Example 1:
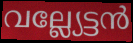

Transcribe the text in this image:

വല്ല്യേട്ടൻ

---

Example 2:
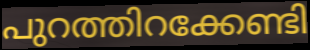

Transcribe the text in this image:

പുറത്തിറക്കേണ്ടി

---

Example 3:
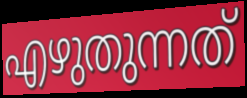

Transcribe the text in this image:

എഴുതുന്നത്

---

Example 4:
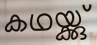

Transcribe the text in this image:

കഥയ്ക്കു്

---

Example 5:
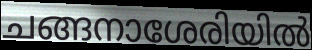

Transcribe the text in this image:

ചങ്ങനാശേരിയിൽ